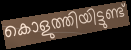
കൊളുത്തിയിട്ടുണ്ട്